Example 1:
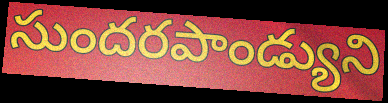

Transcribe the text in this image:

సుందరపాండ్యుని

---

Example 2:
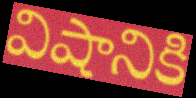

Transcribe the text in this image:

విషానికి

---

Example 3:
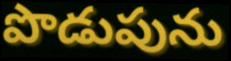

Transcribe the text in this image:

పొడుపును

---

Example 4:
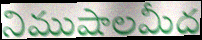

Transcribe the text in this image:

నిముషాలమీద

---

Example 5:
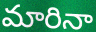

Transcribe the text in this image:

మారినా